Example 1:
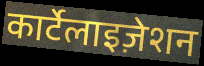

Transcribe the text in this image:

कार्टेलाइज़ेशन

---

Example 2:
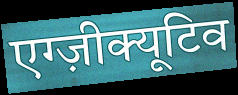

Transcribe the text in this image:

एग्ज़ीक्यूटिव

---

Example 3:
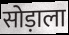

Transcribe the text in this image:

सोड़ाला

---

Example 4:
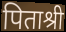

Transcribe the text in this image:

पिताश्री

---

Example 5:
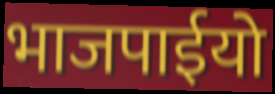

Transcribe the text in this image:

भाजपाईयो